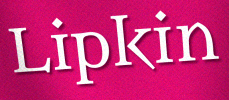
Lipkin